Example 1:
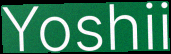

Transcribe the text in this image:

Yoshii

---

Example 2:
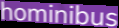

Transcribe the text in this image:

hominibus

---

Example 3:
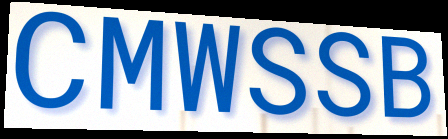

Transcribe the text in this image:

CMWSSB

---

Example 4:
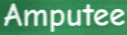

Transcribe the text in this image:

Amputee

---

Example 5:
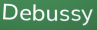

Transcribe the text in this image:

Debussy